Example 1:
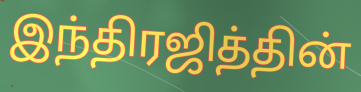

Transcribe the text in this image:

இந்திரஜித்தின்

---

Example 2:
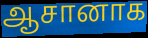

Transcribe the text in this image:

ஆசானாக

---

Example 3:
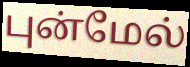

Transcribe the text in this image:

புன்மேல்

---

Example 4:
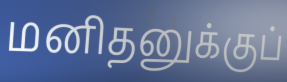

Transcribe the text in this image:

மனிதனுக்குப்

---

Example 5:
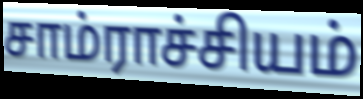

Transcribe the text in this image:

சாம்ராச்சியம்